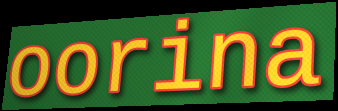
oorina